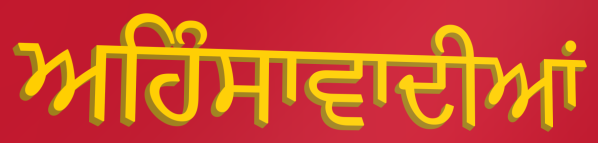
ਅਹਿੰਸਾਵਾਦੀਆਂ